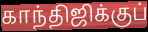
காந்திஜிக்குப்